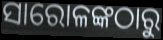
ସାରୋଳଙ୍କଠାରୁ